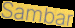
Sambar